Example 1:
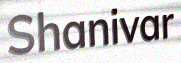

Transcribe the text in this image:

Shanivar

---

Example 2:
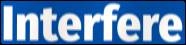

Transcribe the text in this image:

Interfere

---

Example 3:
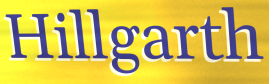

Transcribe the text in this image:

Hillgarth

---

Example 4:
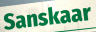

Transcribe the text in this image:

Sanskaar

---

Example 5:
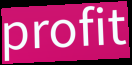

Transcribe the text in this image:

profit